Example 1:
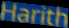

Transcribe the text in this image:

Harith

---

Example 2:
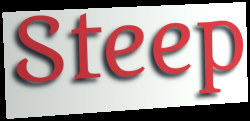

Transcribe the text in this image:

Steep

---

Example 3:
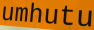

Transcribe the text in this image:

umhutu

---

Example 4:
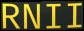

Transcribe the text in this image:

RNII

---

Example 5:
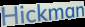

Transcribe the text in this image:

Hickman